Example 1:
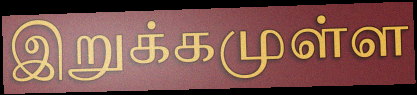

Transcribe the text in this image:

இறுக்கமுள்ள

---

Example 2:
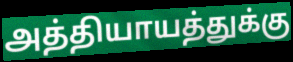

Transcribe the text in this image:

அத்தியாயத்துக்கு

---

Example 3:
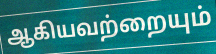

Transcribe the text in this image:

ஆகியவற்றையும்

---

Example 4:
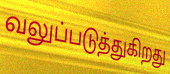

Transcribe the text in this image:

வலுப்படுத்துகிறது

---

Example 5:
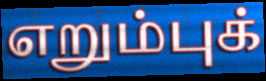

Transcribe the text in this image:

எறும்புக்